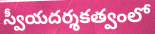
స్వీయదర్శకత్వంలో